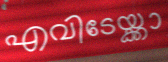
എവിടേയ്ക്കാ